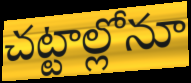
చట్టాల్లోనూ